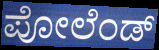
ಪೋಲೆಂಡ್